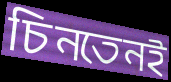
চিনতেনই